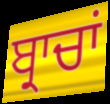
ਬ੍ਰਾਚਾਂ